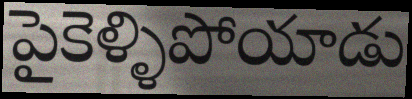
పైకెళ్ళిపోయాడు